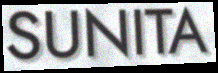
SUNITA